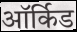
ऑर्किड